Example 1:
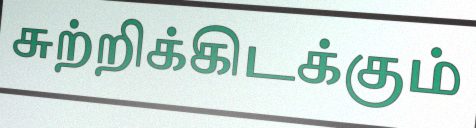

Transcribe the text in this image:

சுற்றிக்கிடக்கும்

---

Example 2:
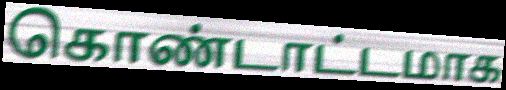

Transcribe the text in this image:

கொண்டாட்டமாக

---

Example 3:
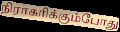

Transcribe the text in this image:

நிராகரிக்கும்போது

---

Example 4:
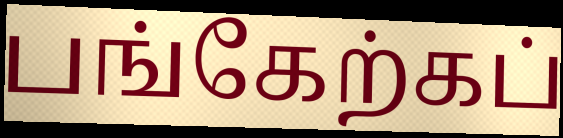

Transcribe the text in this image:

பங்கேற்கப்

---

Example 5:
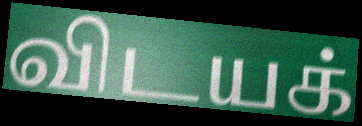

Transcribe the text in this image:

விடயக்